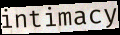
intimacy